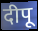
दीपू